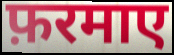
फ़रमाए